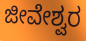
ಜೀವೇಶ್ವರ